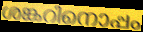
ശങ്കറിനൊപ്പം